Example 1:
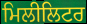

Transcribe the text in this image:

ਮਿਲੀਲਿਟਰ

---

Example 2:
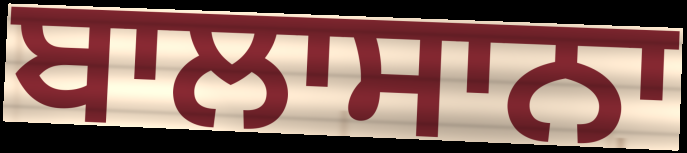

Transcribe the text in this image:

ਬਾਲਾਸਾਨਾ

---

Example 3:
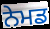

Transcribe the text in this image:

ਨੇਮਡ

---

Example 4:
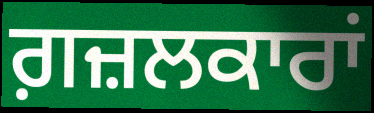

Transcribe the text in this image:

ਗ਼ਜ਼ਲਕਾਰਾਂ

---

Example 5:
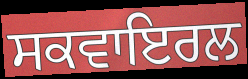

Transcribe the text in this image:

ਸਕਵਾਇਰਲ